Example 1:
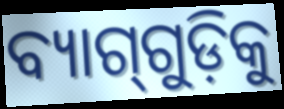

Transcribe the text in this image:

ବ୍ୟାଗ୍‍ଗୁଡ଼ିକୁ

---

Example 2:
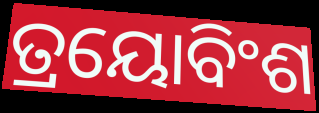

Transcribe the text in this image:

ତ୍ରୟୋବିଂଶ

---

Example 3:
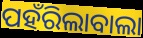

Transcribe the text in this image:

ପହଁରିଲାବାଲା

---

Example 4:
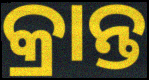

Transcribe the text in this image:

କ୍ରାନ୍ତ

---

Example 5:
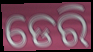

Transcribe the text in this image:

ଡେରି